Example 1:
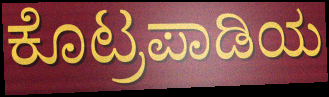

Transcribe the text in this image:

ಕೊಟ್ರಪಾಡಿಯ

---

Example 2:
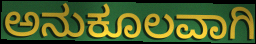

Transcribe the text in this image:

ಅನುಕೂಲವಾಗಿ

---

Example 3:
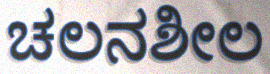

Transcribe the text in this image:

ಚಲನಶೀಲ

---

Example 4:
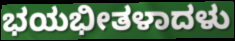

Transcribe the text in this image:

ಭಯಭೀತಳಾದಳು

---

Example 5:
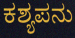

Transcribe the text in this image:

ಕಶ್ಯಪನು